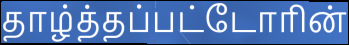
தாழ்த்தப்பட்டோரின்